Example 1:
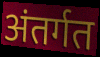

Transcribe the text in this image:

अंतर्गत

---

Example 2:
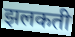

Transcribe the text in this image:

झलकती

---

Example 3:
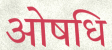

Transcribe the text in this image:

ओषधि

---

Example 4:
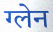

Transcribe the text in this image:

ग्लेन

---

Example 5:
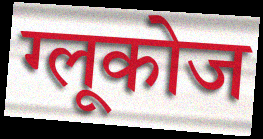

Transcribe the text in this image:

ग्लूकोज